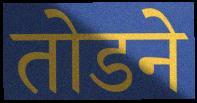
तोडने